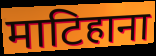
माटिहाना